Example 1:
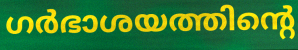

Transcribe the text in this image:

ഗർഭാശയത്തിന്റെ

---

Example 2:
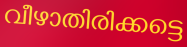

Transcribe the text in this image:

വീഴാതിരിക്കട്ടെ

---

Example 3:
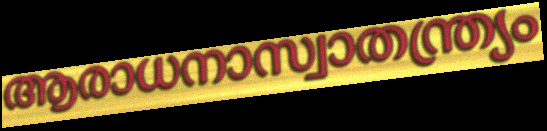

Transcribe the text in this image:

ആരാധനാസ്വാതന്ത്ര്യം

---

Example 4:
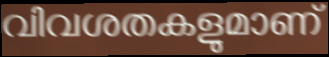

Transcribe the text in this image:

വിവശതകളുമാണ്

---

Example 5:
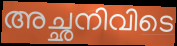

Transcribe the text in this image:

അച്ഛനിവിടെ